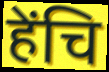
हेंचि